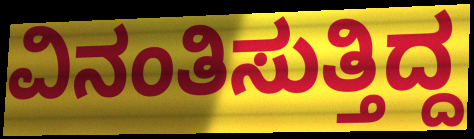
ವಿನಂತಿಸುತ್ತಿದ್ದ